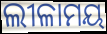
ଲୀଳାମୟ